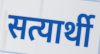
सत्यार्थी